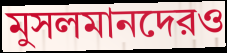
মুসলমানদেরও